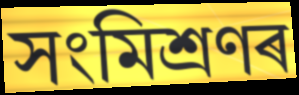
সংমিশ্ৰণৰ